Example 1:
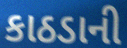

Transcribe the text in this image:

કાઠડાની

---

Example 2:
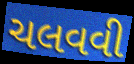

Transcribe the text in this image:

ચલવવી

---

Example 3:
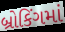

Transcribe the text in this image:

બ્રોકિંગમાં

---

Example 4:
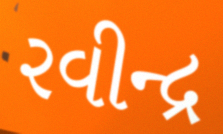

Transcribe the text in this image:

રવીન્દ્ર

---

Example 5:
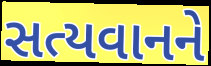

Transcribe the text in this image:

સત્યવાનને